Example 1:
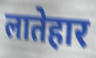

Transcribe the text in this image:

लातेहार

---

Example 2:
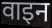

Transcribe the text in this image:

वाइन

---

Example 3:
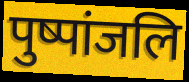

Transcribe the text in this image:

पुष्‍पांजलि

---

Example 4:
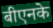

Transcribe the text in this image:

बीएनके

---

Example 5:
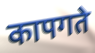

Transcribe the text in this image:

कापगते